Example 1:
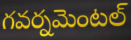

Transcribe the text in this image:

గవర్నమెంటల్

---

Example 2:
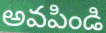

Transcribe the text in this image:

అవపిండి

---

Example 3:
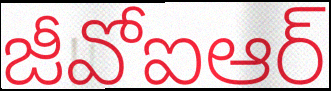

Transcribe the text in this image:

జీవోఐఆర్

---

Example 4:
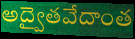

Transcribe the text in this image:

అద్వైతవేదాంత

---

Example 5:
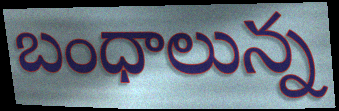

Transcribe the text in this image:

బంధాలున్న